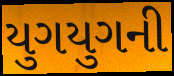
યુગયુગની